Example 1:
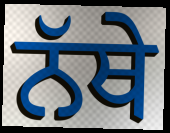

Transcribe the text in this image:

ਨੱਥੇ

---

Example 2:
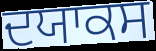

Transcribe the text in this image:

ਦਯਾਕਸ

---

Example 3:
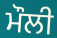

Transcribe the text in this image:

ਮੌਲੀ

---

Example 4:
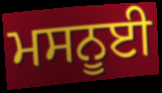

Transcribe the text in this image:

ਮਸਨੂਈ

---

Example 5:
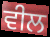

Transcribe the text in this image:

ਵੀਲ